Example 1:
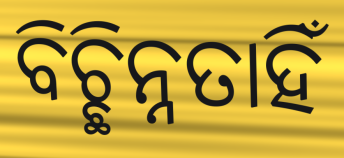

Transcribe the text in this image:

ବିଚ୍ଛିନ୍ନତାହିଁ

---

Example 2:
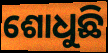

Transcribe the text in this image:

ଶୋଧୁଛି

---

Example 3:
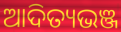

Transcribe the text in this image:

ଆଦିତ୍ୟଭଞ୍ଜ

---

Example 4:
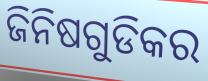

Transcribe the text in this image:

ଜିନିଷଗୁଡିକର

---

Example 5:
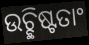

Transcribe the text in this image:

ଉଚ୍ଛିଷ୍ଟତାଂ